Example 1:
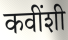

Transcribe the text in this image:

कवींशी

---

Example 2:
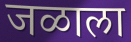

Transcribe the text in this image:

जळाला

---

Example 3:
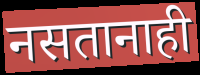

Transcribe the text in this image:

नसतानाही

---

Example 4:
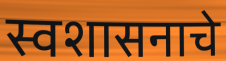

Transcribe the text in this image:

स्वशासनाचे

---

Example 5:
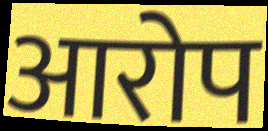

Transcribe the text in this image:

आरोप